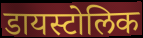
डायस्टोलिक